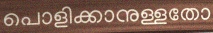
പൊളിക്കാനുള്ളതോ